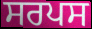
ਸਰਪਸ